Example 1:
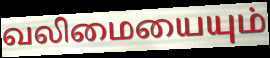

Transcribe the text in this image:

வலிமையையும்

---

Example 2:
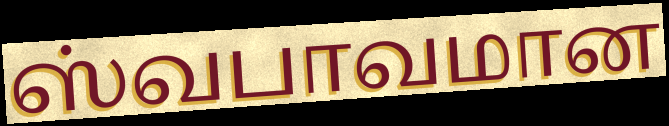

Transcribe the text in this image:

ஸ்வபாவமான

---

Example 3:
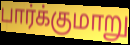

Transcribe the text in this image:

பார்க்குமாறு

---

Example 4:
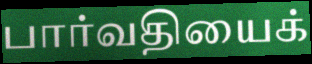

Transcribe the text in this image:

பார்வதியைக்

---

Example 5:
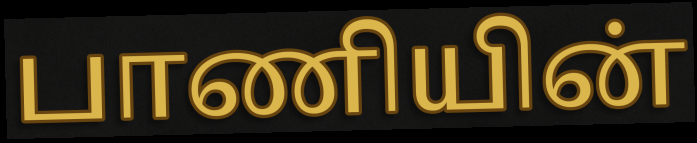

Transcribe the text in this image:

பாணியின்